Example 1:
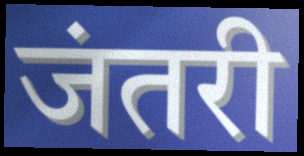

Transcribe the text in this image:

जंतरी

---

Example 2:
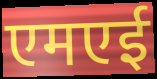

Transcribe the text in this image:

एमएई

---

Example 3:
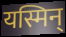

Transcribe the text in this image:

यस्मिन्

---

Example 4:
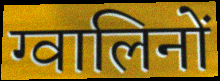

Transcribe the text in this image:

ग्वालिनों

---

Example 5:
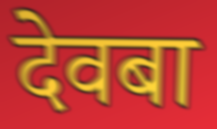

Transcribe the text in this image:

देवबा